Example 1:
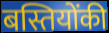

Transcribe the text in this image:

बस्तियोंकी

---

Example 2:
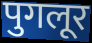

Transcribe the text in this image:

पुगलूर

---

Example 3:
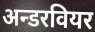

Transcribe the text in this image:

अन्डरवियर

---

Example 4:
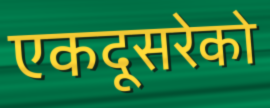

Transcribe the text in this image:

एकदूसरेको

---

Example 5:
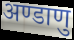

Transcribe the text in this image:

अण्डाणु